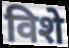
विशे